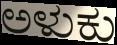
ಅಳುಕು